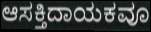
ಆಸಕ್ತಿದಾಯಕವೂ